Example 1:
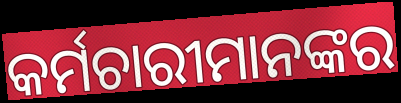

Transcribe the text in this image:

କର୍ମଚାରୀମାନଙ୍କର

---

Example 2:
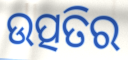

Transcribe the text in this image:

ଉତ୍ପତିର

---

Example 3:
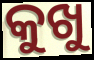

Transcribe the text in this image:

କୁଖୁ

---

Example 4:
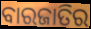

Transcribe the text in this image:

ବାରଜାତିର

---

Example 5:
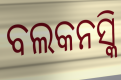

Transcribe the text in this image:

ବଲକନସ୍କି